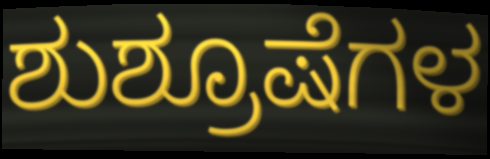
ಶುಶ್ರೂಷೆಗಳ